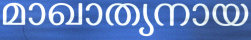
മാഖാത്യനായ